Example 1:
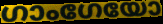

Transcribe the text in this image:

ഗാംഗേയോ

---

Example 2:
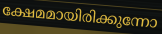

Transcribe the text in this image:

ക്ഷേമമായിരിക്കുന്നോ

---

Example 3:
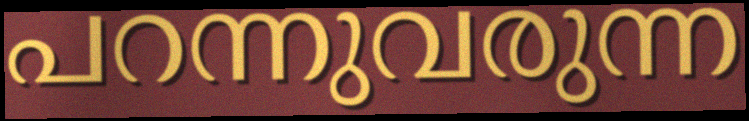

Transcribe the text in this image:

പറന്നുവരുന്ന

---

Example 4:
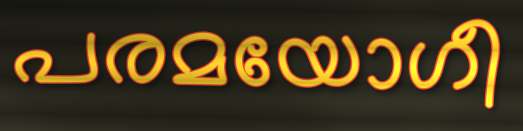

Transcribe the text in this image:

പരമയോഗീ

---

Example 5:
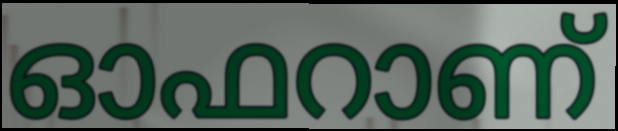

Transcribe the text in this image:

ഓഫറാണ്